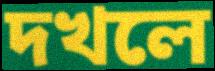
দখলে